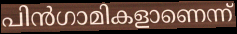
പിൻഗാമികളാണെന്ന്